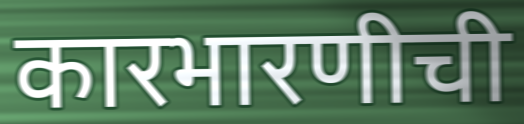
कारभारणीची